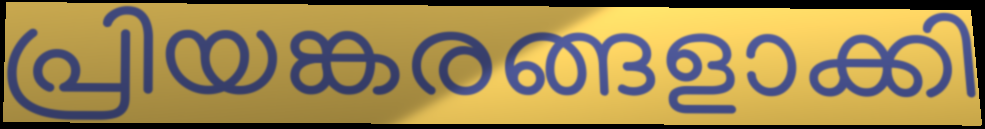
പ്രിയങ്കരങ്ങളാക്കി